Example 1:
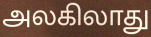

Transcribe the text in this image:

அலகிலாது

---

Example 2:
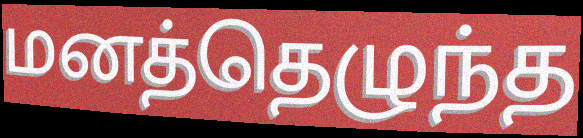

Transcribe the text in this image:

மனத்தெழுந்த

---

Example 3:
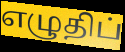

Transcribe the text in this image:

எழுதிப்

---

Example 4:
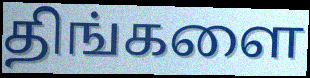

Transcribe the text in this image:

திங்களை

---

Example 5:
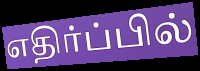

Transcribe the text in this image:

எதிர்ப்பில்